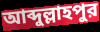
আব্দুল্লাহপুর